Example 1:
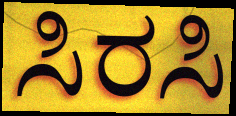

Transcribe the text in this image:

ಸಿರಸಿ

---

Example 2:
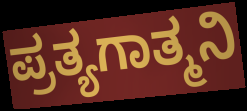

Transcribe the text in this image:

ಪ್ರತ್ಯಗಾತ್ಮನಿ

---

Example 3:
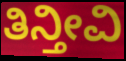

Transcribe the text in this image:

ತಿನ್ತೀವಿ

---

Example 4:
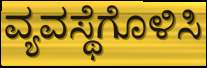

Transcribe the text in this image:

ವ್ಯವಸ್ಥೆಗೊಳಿಸಿ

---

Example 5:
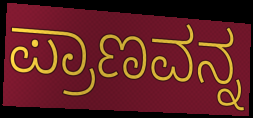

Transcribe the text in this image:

ಪ್ರಾಣವನ್ನ